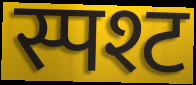
स्पश्ट